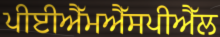
ਪੀਈਐੱਮਐੱਸਪੀਐੱਲ